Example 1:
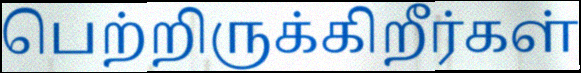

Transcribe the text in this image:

பெற்றிருக்கிறீர்கள்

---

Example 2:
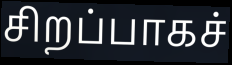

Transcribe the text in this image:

சிறப்பாகச்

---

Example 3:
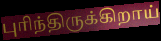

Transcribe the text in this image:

புரிந்திருக்கிறாய்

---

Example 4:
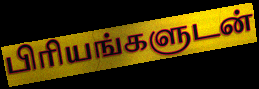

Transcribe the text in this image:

பிரியங்களுடன்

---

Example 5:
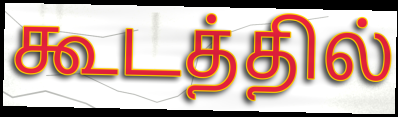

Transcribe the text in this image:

கூடத்தில்